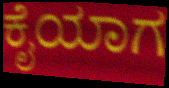
ಕೈಯಾಗ